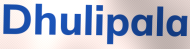
Dhulipala